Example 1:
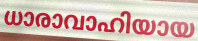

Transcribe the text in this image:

ധാരാവാഹിയായ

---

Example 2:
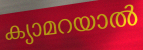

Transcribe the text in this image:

ക്യാമറയാൽ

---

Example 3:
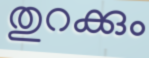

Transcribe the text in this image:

തുറക്കും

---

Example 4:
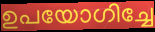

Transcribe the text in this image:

ഉപയോഗിച്ചേ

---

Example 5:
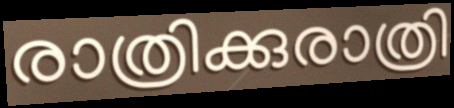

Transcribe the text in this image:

രാത്രിക്കുരാത്രി